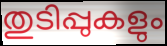
തുടിപ്പുകളും